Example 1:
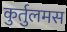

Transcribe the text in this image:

कुर्तुलमस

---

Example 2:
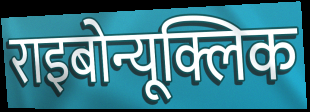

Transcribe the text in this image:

राइबोन्यूक्लिक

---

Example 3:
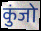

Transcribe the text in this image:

कुंजो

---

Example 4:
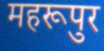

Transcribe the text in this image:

महरूपुर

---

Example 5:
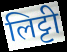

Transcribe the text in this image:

लिट्टी